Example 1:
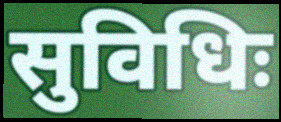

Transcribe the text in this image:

सुविधिः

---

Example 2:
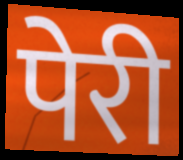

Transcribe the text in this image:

पेरी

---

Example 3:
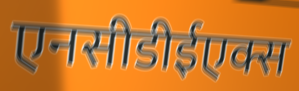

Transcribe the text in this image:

एनसीडीईएक्स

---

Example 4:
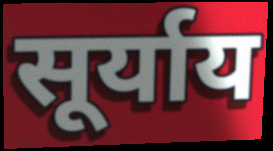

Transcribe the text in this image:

सूर्याय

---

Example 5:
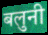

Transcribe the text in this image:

बलुनी